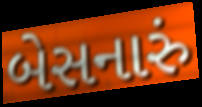
બેસનારું